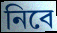
নিবে